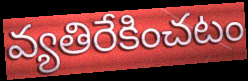
వ్యతిరేకించటం